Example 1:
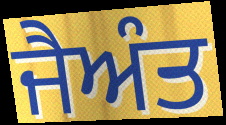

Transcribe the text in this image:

ਜੈਅੰਤ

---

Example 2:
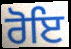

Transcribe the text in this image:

ਰੋਇ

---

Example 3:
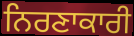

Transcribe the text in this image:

ਨਿਰਣਾਕਾਰੀ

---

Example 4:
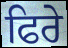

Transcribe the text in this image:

ਫਿਰੇ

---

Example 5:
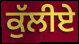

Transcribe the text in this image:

ਕੁੱਲੀਏ